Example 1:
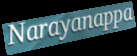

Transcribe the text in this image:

Narayanappa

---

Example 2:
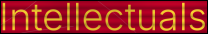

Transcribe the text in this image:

Intellectuals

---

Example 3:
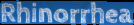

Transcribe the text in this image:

Rhinorrhea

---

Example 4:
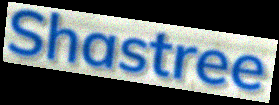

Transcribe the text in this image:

Shastree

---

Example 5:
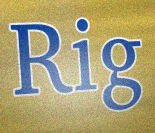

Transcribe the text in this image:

Rig